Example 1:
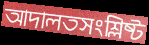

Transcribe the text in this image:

আদালতসংশ্লিষ্ট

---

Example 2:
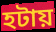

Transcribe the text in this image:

হটায়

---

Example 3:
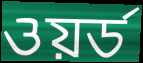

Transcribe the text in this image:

ওয়র্ড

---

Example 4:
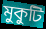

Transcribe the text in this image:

মুকুটি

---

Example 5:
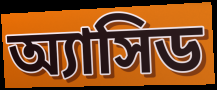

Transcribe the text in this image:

অ্যাসিড